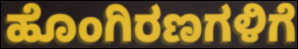
ಹೊಂಗಿರಣಗಳಿಗೆ